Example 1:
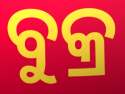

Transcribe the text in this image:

ବୁକ୍ର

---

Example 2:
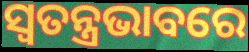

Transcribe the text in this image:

ସ୍ଵତନ୍ତ୍ରଭାବରେ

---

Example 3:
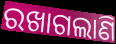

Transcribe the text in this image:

ରଖାଗଲାଣି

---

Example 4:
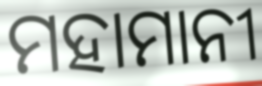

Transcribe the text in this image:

ମହାମାନୀ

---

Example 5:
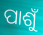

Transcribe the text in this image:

ପାଶୁଁ